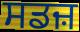
ਸਡਜ਼